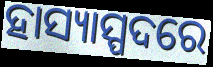
ହାସ୍ୟାସ୍ପଦରେ